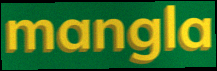
mangla